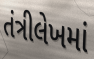
તંત્રીલેખમાં